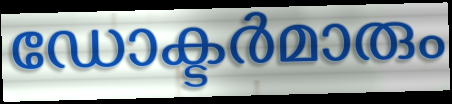
ഡോക്ടർമാരും